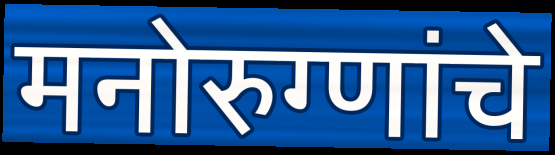
मनोरुग्णांचे